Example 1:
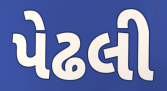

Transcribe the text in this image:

પેઢલી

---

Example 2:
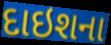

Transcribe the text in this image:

દાઇશના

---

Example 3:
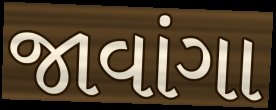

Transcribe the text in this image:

જાવાંગા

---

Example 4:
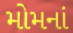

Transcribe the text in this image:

મોમનાં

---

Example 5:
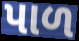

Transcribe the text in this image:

પાળ